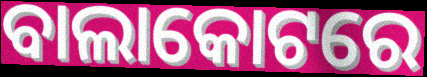
ବାଲାକୋଟରେ